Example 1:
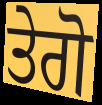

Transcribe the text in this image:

ਤੇਗੋ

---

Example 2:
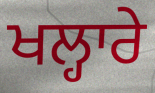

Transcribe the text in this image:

ਖਲ੍ਹਾਰੇ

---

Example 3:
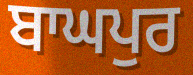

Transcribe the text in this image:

ਬਾਘਪੁਰ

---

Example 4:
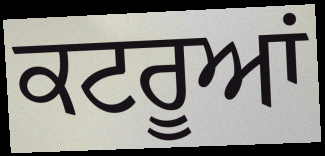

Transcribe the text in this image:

ਕਟਰੂਆਂ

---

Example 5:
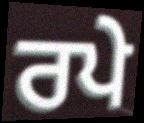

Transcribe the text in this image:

ਰਪੇ